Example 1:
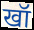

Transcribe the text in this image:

खॉ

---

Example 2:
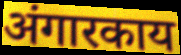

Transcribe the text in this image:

अंगारकाय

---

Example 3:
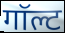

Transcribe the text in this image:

गॉल्ट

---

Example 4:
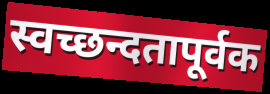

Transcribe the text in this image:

स्वच्छन्दतापूर्वक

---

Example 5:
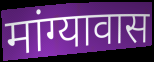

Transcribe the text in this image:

मांग्यावास